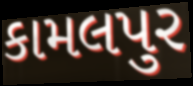
કામલપુર